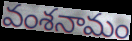
వంశనామం